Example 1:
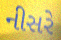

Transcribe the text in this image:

નીસરે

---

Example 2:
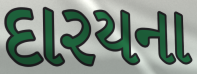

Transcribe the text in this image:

દારયના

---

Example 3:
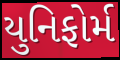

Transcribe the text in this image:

યુનિફોર્મ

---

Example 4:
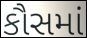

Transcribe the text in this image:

કૌસમાં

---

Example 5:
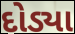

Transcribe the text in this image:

દોડ્યા